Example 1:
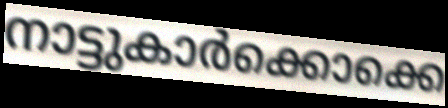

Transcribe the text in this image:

നാട്ടുകാർക്കൊക്കെ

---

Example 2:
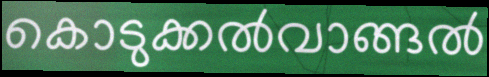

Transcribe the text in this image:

കൊടുക്കൽവാങ്ങൽ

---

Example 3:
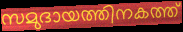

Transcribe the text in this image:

സമുദായത്തിനകത്ത്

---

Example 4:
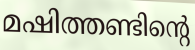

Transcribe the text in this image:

മഷിത്തണ്ടിന്റെ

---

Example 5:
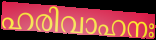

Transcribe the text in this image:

ഹരിവാഹനഃ